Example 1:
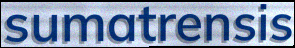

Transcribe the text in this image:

sumatrensis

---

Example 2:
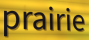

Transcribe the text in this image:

prairie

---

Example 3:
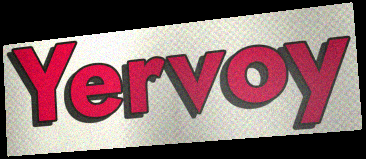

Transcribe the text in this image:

Yervoy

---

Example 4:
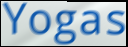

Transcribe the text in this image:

Yogas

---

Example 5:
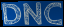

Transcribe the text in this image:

DNC